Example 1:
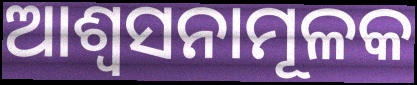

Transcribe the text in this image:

ଆଶ୍ୱସନାମୂଳକ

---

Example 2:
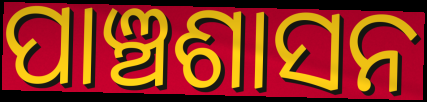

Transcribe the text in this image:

ପାଞ୍ଚଶାସନ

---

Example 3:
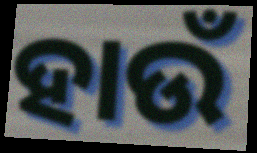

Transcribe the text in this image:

ହାଉଁ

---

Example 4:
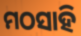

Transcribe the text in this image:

ମଠସାହି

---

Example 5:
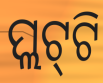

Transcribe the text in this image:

ପ୍ଲଟ୍‌ଟି